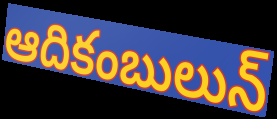
ఆదికంబులున్